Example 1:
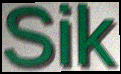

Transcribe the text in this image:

Sik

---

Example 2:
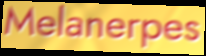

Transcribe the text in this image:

Melanerpes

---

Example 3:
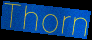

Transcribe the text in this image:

Thorn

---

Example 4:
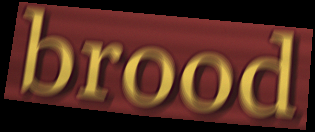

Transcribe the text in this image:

brood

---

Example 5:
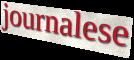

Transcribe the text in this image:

journalese